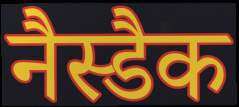
नैस्डैक